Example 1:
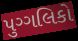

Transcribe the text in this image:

પુગ્ગલિકો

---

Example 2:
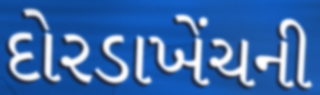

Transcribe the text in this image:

દોરડાખેંચની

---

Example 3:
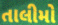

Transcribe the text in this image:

તાલીમો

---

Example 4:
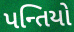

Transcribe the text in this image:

પન્તિયો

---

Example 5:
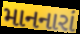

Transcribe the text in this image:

માનનારાં